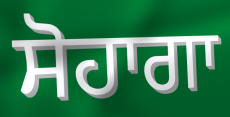
ਸੋਹਾਗਾ